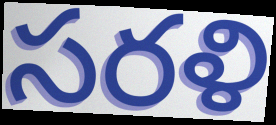
సరళి